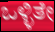
ಒಳ್ಳಿತೇ